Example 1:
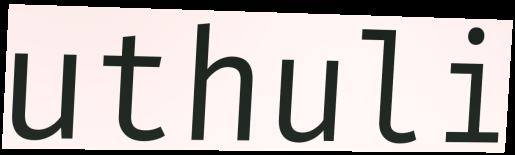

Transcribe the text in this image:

uthuli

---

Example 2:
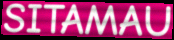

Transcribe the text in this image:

SITAMAU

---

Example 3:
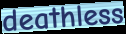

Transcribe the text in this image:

deathless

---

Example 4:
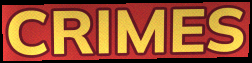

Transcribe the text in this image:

CRIMES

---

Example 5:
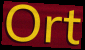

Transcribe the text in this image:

Ort